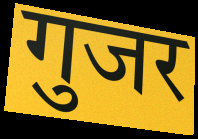
गुजर